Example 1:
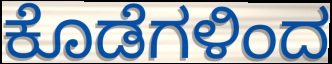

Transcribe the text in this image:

ಕೊಡೆಗಳಿಂದ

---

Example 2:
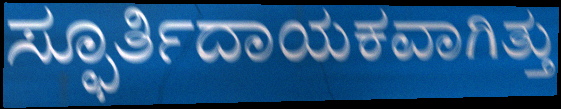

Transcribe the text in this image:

ಸ್ಫೂರ್ತಿದಾಯಕವಾಗಿತ್ತು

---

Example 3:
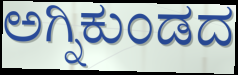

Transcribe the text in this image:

ಅಗ್ನಿಕುಂಡದ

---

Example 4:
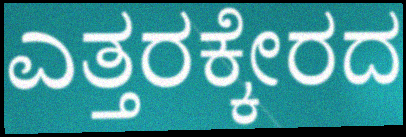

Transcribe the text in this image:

ಎತ್ತರಕ್ಕೇರದ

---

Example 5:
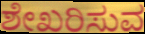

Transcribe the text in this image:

ಶೇಖರಿಸುವ